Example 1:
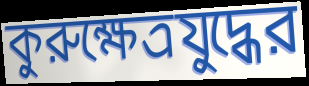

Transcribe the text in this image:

কুরুক্ষেত্রযুদ্ধের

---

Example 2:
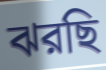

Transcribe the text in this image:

ঝরছি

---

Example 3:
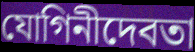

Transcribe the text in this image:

যোগিনীদেবতা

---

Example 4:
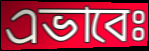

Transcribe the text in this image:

এভাবেঃ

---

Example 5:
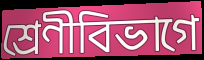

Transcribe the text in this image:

শ্রেণীবিভাগে